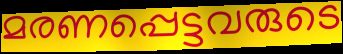
മരണപ്പെട്ടവരുടെ